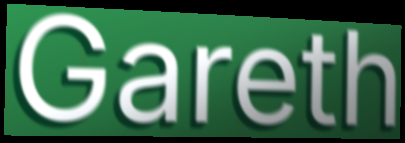
Gareth